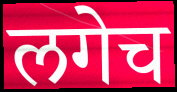
लगेच